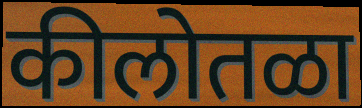
कीलोतळा